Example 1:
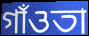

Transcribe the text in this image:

গাঁওতা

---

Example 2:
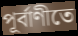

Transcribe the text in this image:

পূর্বাণীতে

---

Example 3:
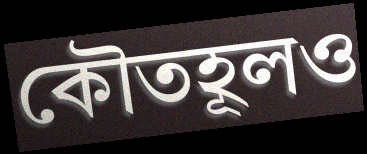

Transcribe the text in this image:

কৌতহূলও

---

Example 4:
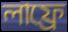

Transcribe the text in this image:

লাফ্রে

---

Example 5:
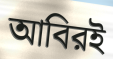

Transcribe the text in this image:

আবিরই